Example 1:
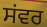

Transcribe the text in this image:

ਸਂਵਰ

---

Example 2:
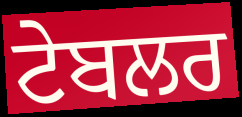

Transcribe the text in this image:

ਟੇਬਲਰ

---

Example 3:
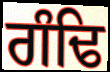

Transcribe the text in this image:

ਗੰਢਿ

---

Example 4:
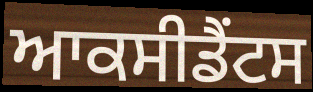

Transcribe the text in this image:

ਆਕਸੀਡੈਂਟਸ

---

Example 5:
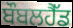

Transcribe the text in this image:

ਬੌਬਲਹੈੱਡ